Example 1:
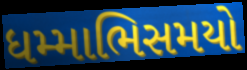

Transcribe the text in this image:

ધમ્માભિસમયો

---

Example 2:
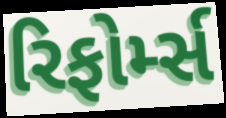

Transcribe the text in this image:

રિફોર્મ્સ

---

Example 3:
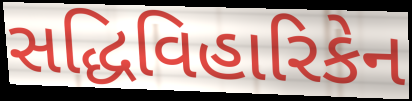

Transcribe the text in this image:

સદ્ધિવિહારિકેન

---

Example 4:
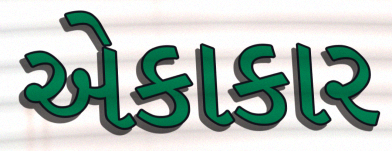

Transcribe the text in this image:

એકાકાર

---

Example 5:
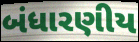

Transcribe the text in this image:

બંધારણીય